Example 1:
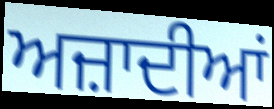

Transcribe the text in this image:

ਅਜ਼ਾਦੀਆਂ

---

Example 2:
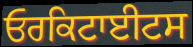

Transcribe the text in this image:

ਓਰਕਿਟਾਈਟਸ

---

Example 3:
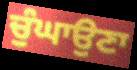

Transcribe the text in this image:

ਚੁੰਘਾਉਣਾ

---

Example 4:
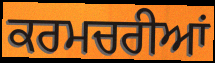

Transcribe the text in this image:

ਕਰਮਚਰੀਆਂ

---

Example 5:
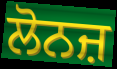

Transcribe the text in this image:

ਲੋਨਜ਼